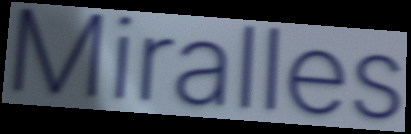
Miralles